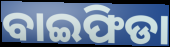
ବାଇଫିଡା